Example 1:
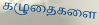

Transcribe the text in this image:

கழுதைகளை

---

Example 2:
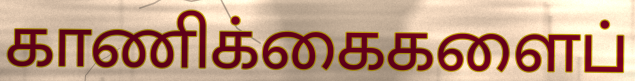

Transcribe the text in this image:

காணிக்கைகளைப்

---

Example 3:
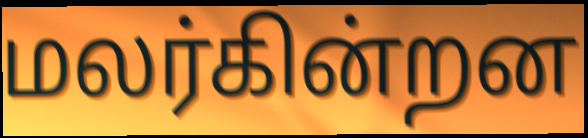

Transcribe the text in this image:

மலர்கின்றன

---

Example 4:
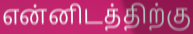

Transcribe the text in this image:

என்னிடத்திற்கு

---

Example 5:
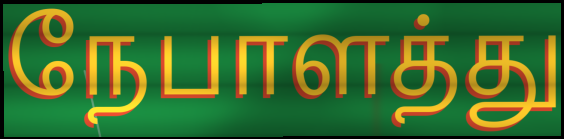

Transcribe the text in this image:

நேபாளத்து